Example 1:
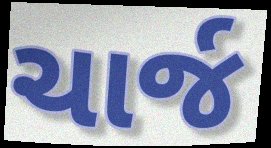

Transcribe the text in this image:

ચાર્જ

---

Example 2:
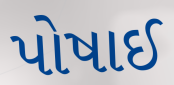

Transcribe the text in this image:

પોષાઈ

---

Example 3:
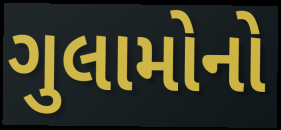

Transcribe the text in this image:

ગુલામોનો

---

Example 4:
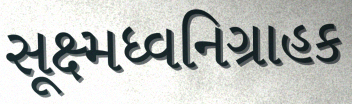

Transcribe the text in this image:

સૂક્ષ્મધ્વનિગ્રાહક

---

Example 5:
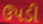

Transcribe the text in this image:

ઉપડી